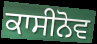
ਕਾਸੀਨੋਵ